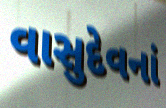
વાસુદેવનાં